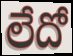
లేదో